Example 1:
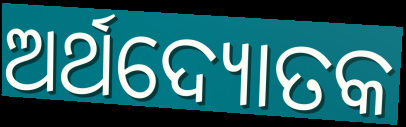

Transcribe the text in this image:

ଅର୍ଥଦ୍ୟୋତକ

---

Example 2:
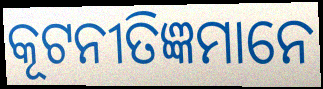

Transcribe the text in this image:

କୂଟନୀତିଜ୍ଞମାନେ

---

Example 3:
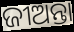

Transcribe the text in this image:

ଜୀଅନ୍ତା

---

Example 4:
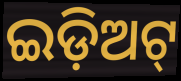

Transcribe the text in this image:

ଇଡ଼ିଅଟ୍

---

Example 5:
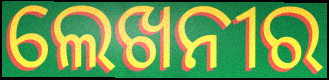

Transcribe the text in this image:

ଲେଖନୀର